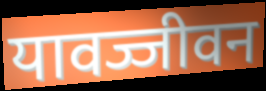
यावज्जीवन